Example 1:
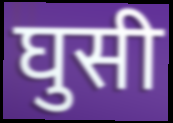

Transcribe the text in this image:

घुसी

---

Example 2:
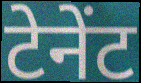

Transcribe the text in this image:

टेनेंट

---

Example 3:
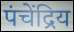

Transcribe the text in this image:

पंचेंद्रिय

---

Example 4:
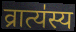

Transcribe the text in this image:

व्रात्य॑स्य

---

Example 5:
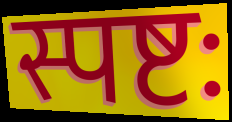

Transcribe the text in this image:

स्पष्टः